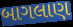
બાગલાણ